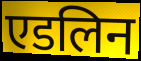
एडलिन